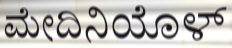
ಮೇದಿನಿಯೊಳ್